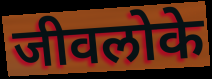
जीवलोके